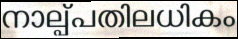
നാല്പ്പതിലധികം